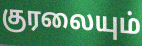
குரலையும்